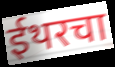
ईथरचा